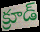
క్రూడ్